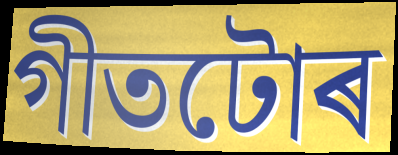
গীতটোৰ